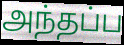
அந்தப்ப